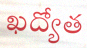
ఖద్యోత